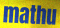
mathu